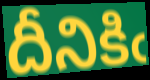
దీనికిఁ